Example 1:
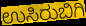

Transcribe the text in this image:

ಉಸಿರುಬಿಗಿ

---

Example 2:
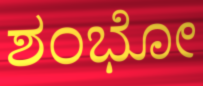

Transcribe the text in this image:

ಶಂಭೋ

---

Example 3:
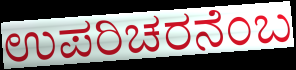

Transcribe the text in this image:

ಉಪರಿಚರನೆಂಬ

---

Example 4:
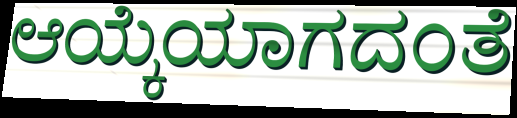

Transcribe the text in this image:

ಆಯ್ಕೆಯಾಗದಂತೆ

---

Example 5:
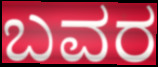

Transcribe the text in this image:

ಬವರ